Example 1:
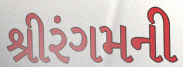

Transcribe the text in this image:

શ્રીરંગમની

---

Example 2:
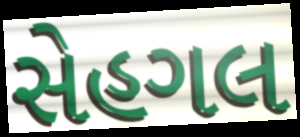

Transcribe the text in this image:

સેહગલ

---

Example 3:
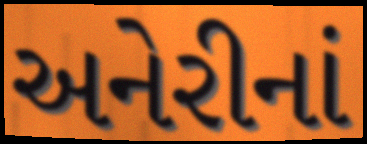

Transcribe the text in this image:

અનેરીનાં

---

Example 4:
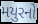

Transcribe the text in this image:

મયુરનો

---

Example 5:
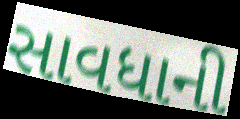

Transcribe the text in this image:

સાવધાની